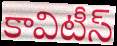
కావిటీస్